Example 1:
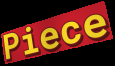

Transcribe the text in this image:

Piece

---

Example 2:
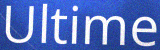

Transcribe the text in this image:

Ultime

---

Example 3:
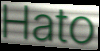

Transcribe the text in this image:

Hato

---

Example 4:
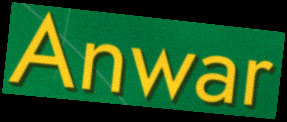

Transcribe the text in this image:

Anwar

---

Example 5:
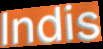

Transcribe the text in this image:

Indis